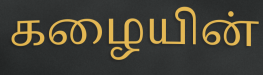
கழையின்